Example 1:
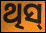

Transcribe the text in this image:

ଥିସ୍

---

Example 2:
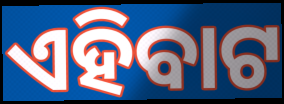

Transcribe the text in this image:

ଏହିବାଟ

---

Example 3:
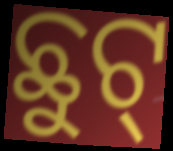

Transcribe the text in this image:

ଛୁଟ୍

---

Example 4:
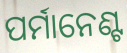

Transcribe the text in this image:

ପର୍ମାନେଣ୍ଟ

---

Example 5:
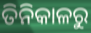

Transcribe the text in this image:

ତିନିକାଳରୁ